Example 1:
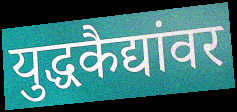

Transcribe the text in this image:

युद्धकैद्यांवर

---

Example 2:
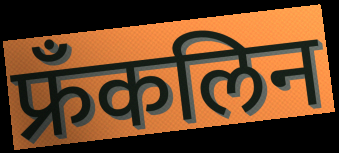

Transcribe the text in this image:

फ्रॅंकलिन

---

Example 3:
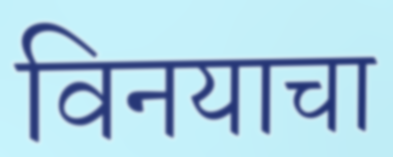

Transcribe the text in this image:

विनयाचा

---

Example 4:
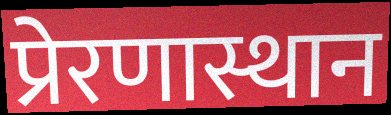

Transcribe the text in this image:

प्रेरणास्थान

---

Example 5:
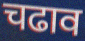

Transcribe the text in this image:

चढाव